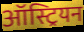
ऑस्ट्रियन